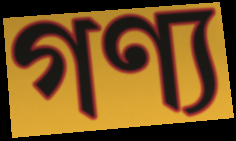
গণ্য